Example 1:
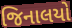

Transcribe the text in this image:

જિનાલયો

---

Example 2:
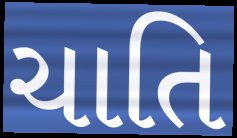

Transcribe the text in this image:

ચાતિ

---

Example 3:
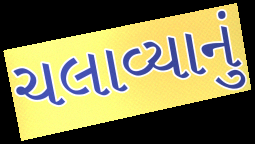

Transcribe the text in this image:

ચલાવ્યાનું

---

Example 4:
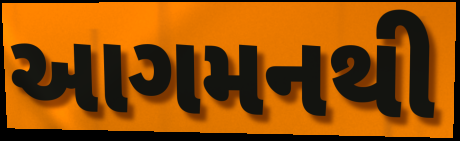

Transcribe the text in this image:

આગમનથી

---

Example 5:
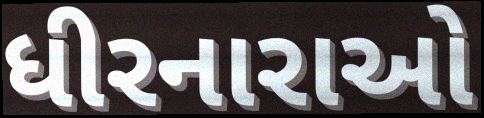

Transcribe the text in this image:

ધીરનારાઓ